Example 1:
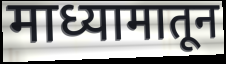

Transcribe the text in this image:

माध्यामातून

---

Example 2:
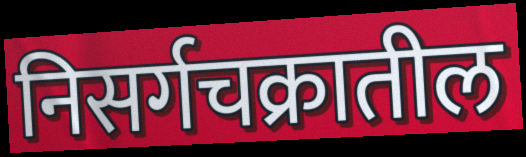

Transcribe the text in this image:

निसर्गचक्रातील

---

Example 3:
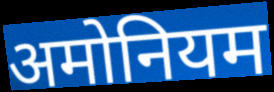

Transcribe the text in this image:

अमोनियम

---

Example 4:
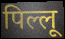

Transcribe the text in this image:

पिल्लू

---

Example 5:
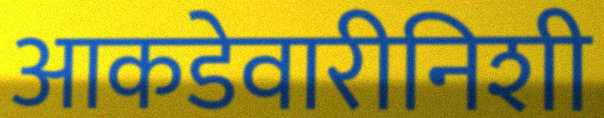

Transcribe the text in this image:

आकडेवारीनिशी